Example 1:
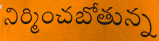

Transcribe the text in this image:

నిర్మించబోతున్న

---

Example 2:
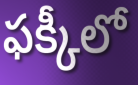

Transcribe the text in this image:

ఫక్కీలో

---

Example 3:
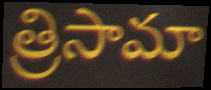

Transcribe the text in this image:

త్రిసామా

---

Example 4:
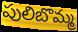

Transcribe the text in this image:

పులిబొమ్మ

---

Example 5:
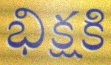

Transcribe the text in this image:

భిక్షకి